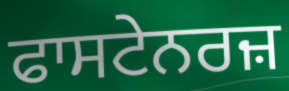
ਫਾਸਟੇਨਰਜ਼